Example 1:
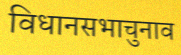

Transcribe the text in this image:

विधानसभाचुनाव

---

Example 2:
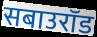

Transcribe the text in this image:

सबाउरॉड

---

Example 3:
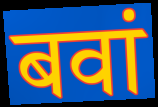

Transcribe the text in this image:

बवां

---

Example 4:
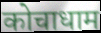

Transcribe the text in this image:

कोचाधाम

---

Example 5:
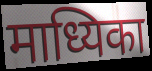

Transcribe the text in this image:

माध्यिका